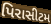
પિરાસીટમ